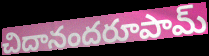
చిదానందరూపామ్